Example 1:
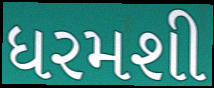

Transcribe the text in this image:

ધરમશી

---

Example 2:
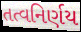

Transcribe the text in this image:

તત્વનિર્ણય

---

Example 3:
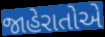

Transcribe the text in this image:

જાહેરાતોએ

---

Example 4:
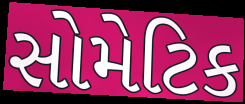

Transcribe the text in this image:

સોમેટિક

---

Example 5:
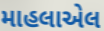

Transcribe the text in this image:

માહલાએલ